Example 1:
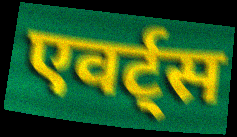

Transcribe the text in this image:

एवर्ट्स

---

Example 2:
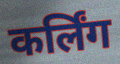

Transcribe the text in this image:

कर्लिंग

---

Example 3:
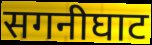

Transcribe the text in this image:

सगनीघाट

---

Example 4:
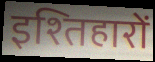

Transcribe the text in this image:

इश्तिहारों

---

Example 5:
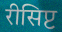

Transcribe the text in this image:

रीसिप्ट